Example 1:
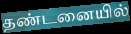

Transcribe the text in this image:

தண்டனையில்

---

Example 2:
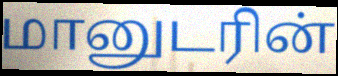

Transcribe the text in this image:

மானுடரின்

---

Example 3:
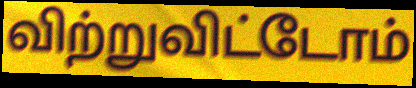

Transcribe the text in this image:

விற்றுவிட்டோம்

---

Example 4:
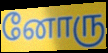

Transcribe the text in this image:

னோரு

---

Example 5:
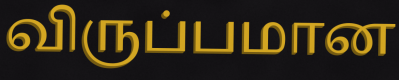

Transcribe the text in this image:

விருப்பமான